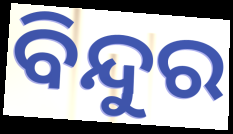
ବିନ୍ଦୁର